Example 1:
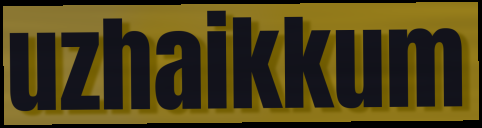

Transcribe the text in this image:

uzhaikkum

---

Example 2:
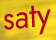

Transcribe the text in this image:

saty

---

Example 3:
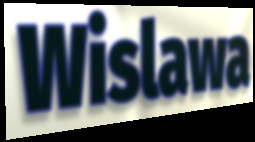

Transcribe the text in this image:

Wislawa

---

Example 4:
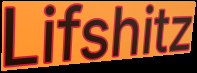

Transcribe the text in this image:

Lifshitz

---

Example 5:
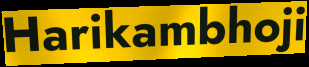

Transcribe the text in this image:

Harikambhoji